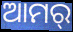
ଆମର୍